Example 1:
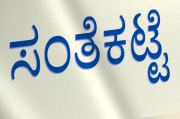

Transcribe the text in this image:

ಸಂತೆಕಟ್ಟೆ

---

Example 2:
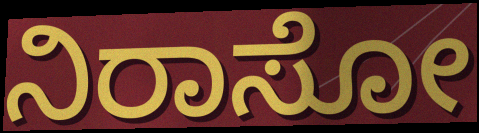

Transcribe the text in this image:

ನಿರಾಸೋ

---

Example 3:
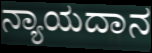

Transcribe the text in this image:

ನ್ಯಾಯದಾನ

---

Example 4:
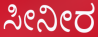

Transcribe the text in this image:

ಸೀನೀರ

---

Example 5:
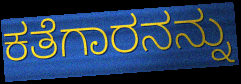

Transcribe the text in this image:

ಕತೆಗಾರನನ್ನು